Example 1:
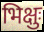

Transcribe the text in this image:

भिक्षुः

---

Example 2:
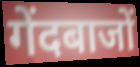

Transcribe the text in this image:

गेंदबाजों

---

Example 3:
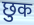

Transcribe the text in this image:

छुक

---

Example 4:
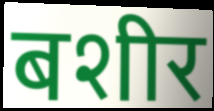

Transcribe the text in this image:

बशीर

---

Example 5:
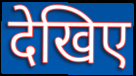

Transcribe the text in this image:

देखिए